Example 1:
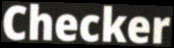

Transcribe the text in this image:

Checker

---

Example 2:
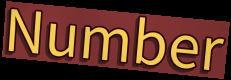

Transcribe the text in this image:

Number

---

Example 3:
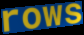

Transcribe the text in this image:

rows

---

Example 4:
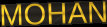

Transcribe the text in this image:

MOHAN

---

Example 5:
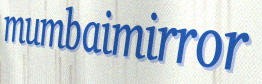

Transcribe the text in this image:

mumbaimirror